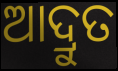
ଆଦ୍ରୁତ